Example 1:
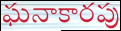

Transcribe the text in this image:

ఘనాకారపు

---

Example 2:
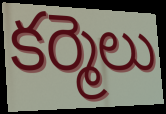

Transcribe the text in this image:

కర్మెలు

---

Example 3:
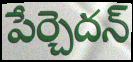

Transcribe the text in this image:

పేర్చెదన్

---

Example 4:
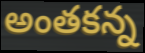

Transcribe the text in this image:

అంతకన్న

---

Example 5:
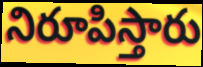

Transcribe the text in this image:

నిరూపిస్తారు